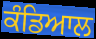
ਕੰਡਿਆਲ